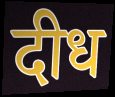
दीध